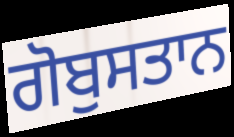
ਗੋਬੁਸਤਾਨ